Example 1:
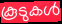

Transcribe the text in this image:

കൂടുകൾ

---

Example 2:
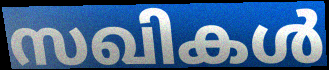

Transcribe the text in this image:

സഖികൾ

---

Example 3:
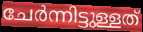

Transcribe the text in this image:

ചേർന്നിട്ടുള്ളത്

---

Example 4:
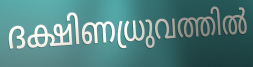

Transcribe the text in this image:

ദക്ഷിണധ്രുവത്തിൽ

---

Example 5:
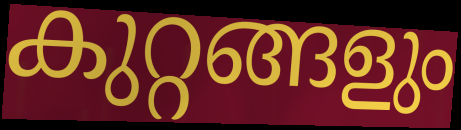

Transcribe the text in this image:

കുറ്റങ്ങളും